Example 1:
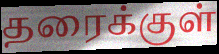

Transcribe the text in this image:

தரைக்குள்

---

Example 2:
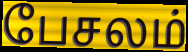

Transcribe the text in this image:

பேசலம்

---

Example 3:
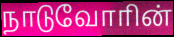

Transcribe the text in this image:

நாடுவோரின்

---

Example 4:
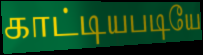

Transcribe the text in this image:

காட்டியபடியே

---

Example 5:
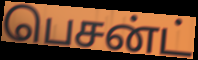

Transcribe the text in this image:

பெசன்ட்